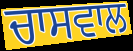
ਚਾਸਵਾਲ